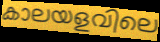
കാലയളവിലെ